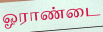
ஓராண்டை